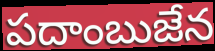
పదాంబుజేన